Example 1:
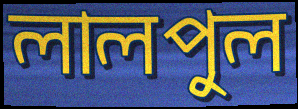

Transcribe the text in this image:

লালপুল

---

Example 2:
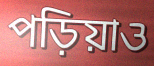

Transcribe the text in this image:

পড়িয়াও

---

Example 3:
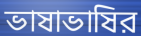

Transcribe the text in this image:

ভাষাভাষির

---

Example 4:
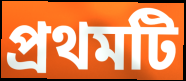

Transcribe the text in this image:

প্রথমটি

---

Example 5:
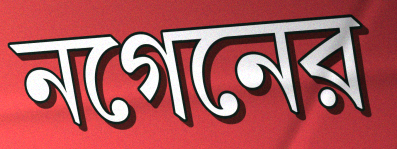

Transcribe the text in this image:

নগেনের